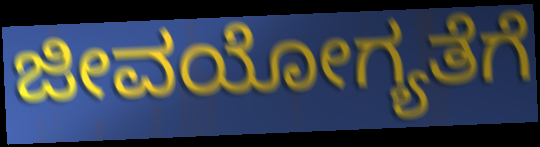
ಜೀವಯೋಗ್ಯತೆಗೆ